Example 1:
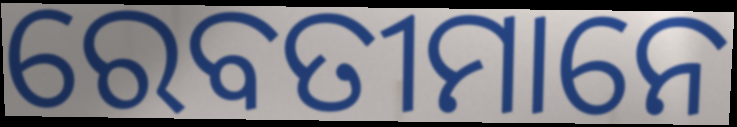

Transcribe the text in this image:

ରେବତୀମାନେ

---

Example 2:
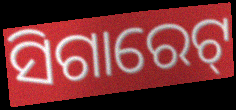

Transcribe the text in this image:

ସିଗାରେଟ୍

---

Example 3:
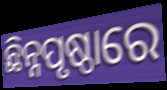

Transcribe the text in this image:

ଛିନ୍ନପୃଷ୍ଠାରେ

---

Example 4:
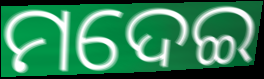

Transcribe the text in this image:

ମଦେଇ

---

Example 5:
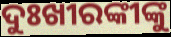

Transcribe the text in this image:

ଦୁଃଖୀରଙ୍କୀଙ୍କୁ